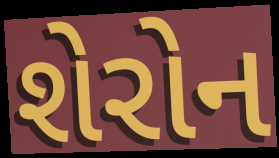
શેરોન